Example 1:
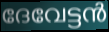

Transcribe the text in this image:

ദേവേട്ടൻ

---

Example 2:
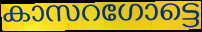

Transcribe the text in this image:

കാസറഗോട്ടെ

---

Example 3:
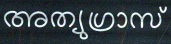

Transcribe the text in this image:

അത്യുഗ്രാസ്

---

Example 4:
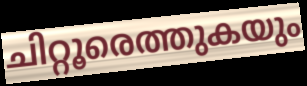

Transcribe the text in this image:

ചിറ്റൂരെത്തുകയും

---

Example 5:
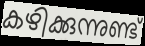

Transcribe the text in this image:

കഴിക്കുന്നുണ്ട്